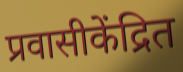
प्रवासीकेंद्रित